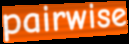
pairwise